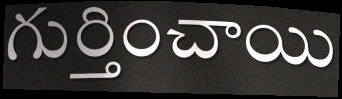
గుర్తించాయి